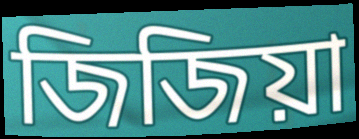
জিজিয়া